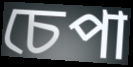
চেপা